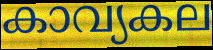
കാവ്യകല